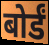
बोर्डं